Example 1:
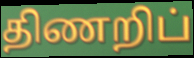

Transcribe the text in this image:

திணறிப்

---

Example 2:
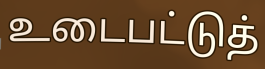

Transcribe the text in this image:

உடைபட்டுத்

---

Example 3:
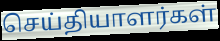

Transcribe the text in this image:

செய்தியாளர்கள்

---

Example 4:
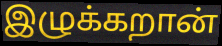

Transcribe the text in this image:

இழுக்கறான்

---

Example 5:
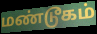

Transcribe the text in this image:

மண்டூகம்